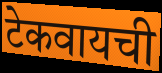
टेकवायची